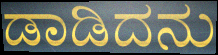
ಡಾಡಿದನು